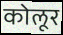
कोलूर